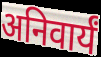
अनिवार्यं